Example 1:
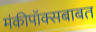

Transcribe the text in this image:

मंकीपॉक्सबाबत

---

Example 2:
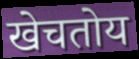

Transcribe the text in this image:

खेचतोय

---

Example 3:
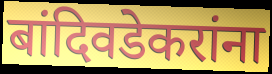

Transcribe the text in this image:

बांदिवडेकरांना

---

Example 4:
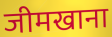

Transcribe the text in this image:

जीमखाना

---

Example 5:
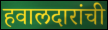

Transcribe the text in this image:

हवालदारांची